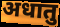
अधातु